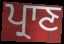
ਪ੍ਰਾਣ